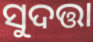
ସୁଦତ୍ତା